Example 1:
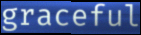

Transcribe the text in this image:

graceful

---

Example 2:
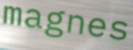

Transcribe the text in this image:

magnes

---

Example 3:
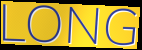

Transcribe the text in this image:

LONG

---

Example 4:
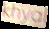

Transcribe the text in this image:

khyal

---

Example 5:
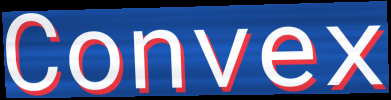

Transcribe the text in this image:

Convex